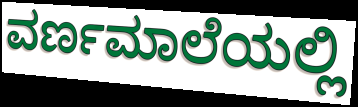
ವರ್ಣಮಾಲೆಯಲ್ಲಿ